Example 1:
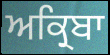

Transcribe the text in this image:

ਅਕ੍ਰਿਬਾ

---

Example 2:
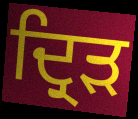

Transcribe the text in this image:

ਦ੍ਰਿਡ਼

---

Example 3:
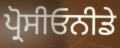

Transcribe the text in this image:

ਪ੍ਰੋਸੀਓਨੀਡੇ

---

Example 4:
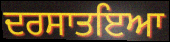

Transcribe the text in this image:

ਦਰਸਾਤਇਆ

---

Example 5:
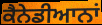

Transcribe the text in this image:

ਕੈਨੇਡੀਆਨਾਂ